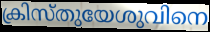
ക്രിസ്തുയേശുവിനെ